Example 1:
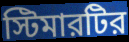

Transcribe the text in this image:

স্টিমারটির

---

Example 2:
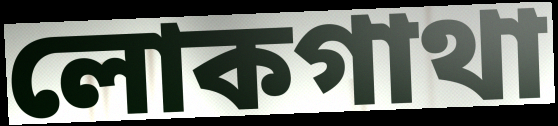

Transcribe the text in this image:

লোকগাথা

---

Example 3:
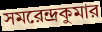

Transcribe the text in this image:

সমরেন্দ্রকুমার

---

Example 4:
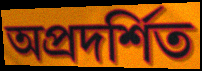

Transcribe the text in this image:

অপ্রদর্শিত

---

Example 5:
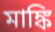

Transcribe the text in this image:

মাঙ্কি